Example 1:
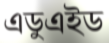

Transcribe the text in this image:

এডুএইড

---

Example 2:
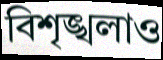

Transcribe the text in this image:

বিশৃঙ্খলাও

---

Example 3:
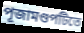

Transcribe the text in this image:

পূজামণ্ডপটিতে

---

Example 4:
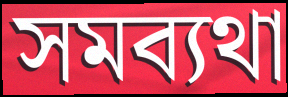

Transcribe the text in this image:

সমব্যথা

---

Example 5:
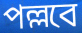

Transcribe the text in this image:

পল্লবে